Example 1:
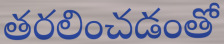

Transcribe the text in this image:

తరలించడంతో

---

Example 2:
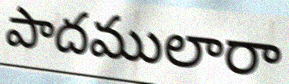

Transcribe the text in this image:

పాదములారా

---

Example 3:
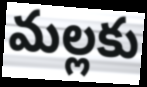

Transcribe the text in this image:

మల్లకు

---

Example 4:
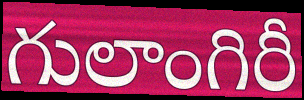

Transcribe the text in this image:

గులాంగిరీ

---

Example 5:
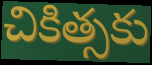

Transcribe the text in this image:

చికిత్సకు